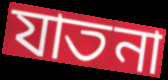
যাতনা